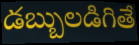
డబ్బులడిగితే